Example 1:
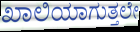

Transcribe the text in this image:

ಖಾಲಿಯಾಗುತ್ತಲೇ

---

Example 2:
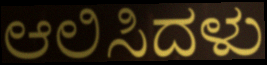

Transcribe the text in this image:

ಆಲಿಸಿದಳು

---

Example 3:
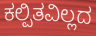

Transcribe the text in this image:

ಕಲ್ಪಿತವಿಲ್ಲದ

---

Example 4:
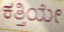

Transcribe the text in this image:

ಕತ್ತಿಯೇ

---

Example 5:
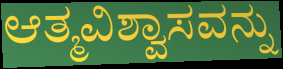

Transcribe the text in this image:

ಆತ್ಮವಿಶ್ವಾಸವನ್ನು